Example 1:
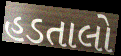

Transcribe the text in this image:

હડતાલો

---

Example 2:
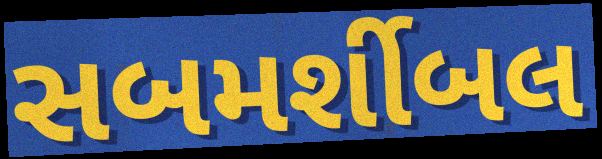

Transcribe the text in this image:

સબમર્શીબલ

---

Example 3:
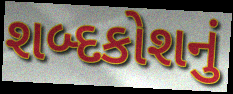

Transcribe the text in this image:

શબ્દકોશનું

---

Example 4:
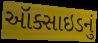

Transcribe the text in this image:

ઑક્સાઇડનું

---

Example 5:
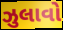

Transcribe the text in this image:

ઝુલાવો